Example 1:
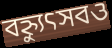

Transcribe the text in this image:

বহ্ন্যুৎসবও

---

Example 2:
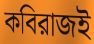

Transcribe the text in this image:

কবিরাজই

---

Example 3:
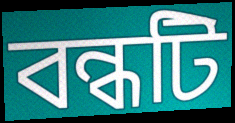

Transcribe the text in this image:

বন্ধটি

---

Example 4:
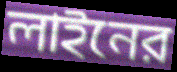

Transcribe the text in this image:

লাইনের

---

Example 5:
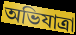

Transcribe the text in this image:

অভিযাত্রা